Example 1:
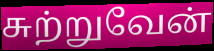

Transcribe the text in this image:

சுற்றுவேன்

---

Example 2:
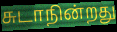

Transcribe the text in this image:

சுடாநின்றது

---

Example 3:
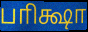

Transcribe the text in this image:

பரிக்ஷா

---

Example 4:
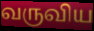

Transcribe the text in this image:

வருவிய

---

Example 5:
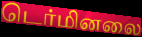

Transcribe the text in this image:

டெர்மினலை